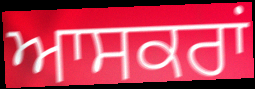
ਆਸਕਰਾਂ